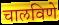
चालविणे